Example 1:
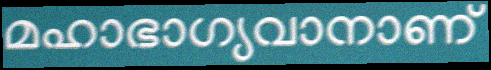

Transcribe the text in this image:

മഹാഭാഗ്യവാനാണ്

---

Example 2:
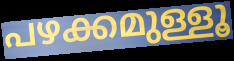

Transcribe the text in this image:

പഴക്കമുള്ളൂ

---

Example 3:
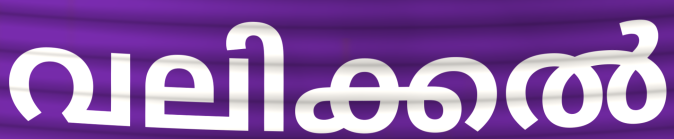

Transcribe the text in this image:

വലിക്കൽ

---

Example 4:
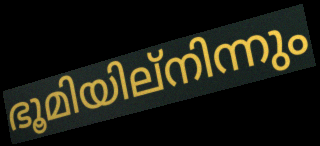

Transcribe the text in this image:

ഭൂമിയില്നിന്നും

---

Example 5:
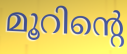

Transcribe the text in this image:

മൂറിന്റെ